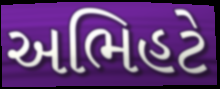
અભિહટે